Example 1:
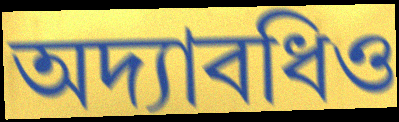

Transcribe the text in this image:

অদ্যাবধিও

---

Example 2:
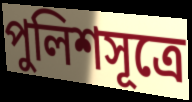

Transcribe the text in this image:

পুলিশসূত্রে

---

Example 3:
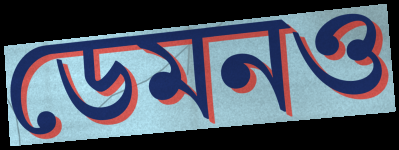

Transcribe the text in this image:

ডেমনও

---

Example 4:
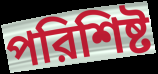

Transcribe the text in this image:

পরিশিষ্ট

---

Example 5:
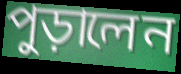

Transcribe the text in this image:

পুড়ালেন